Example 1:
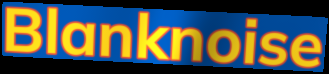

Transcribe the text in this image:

Blanknoise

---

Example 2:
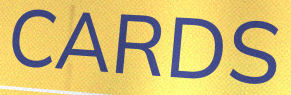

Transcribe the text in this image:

CARDS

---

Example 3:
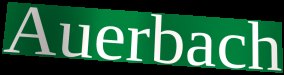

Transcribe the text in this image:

Auerbach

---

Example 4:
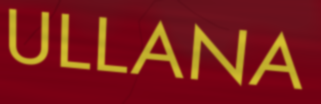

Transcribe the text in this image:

ULLANA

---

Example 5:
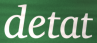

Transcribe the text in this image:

detat